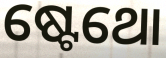
ଷ୍ଟେଥୋ